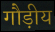
गौड़ीय